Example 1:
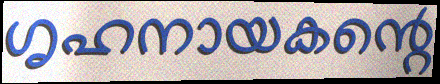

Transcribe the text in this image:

ഗൃഹനായകന്റെ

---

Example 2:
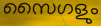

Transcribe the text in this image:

സൈഗളും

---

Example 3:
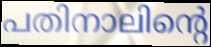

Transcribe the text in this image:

പതിനാലിന്റെ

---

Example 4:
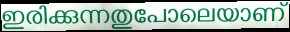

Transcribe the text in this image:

ഇരിക്കുന്നതുപോലെയാണ്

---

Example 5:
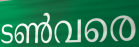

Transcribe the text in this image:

ടൺവരെ